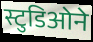
स्टुडिओने